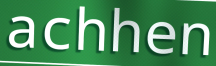
achhen